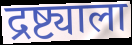
द्रष्ट्याला